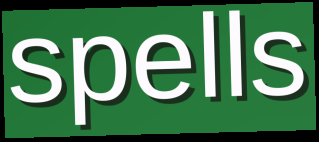
spells